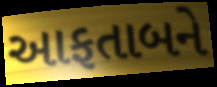
આફતાબને